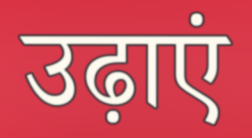
उढ़ाएं